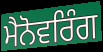
ਮੈਨੋਵਰਿੰਗ